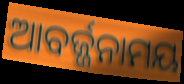
ଆବର୍ଜ୍ଜନାମୟ